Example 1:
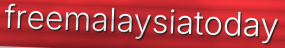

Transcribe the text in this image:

freemalaysiatoday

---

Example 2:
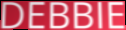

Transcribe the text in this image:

DEBBIE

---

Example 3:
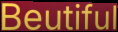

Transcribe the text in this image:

Beutiful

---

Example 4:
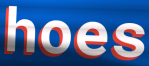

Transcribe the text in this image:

hoes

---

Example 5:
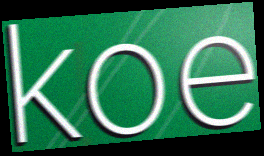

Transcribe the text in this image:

koe